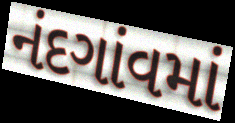
નંદગાંવમાં